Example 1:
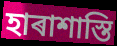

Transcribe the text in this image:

হাৰাশাস্তি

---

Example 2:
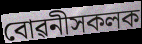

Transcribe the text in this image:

বোৱনীসকলক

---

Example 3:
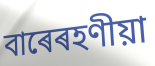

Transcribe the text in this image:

বাৰেৰহণীয়া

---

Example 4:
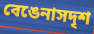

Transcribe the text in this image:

বেঙেনাসদৃশ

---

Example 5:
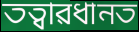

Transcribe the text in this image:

তত্বাৱধানত